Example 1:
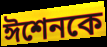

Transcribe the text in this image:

ঈশেনকে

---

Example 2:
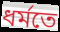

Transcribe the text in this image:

ধর্মতে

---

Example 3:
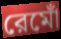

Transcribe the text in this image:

রেমোঁ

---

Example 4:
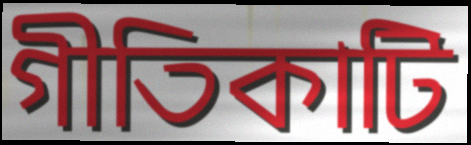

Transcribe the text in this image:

গীতিকাটি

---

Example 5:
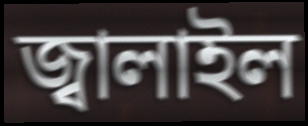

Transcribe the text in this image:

জ্বালাইল